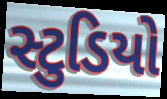
સ્ટુડિયો